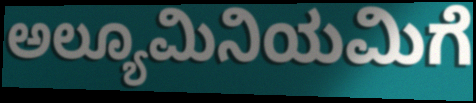
ಅಲ್ಯೂಮಿನಿಯಮಿಗೆ